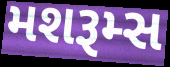
મશરૂમ્સ